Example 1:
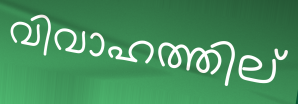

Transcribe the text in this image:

വിവാഹത്തില്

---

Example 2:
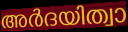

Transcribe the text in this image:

അർദയിത്വാ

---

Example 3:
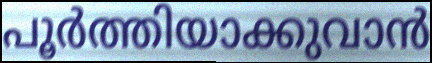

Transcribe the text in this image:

പൂർത്തിയാക്കുവാൻ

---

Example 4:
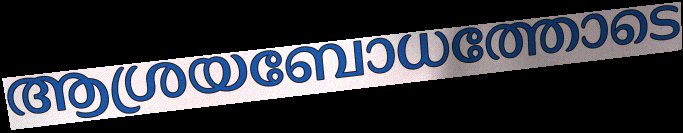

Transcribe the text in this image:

ആശ്രയബോധത്തോടെ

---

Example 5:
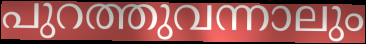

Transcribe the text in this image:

പുറത്തുവന്നാലും